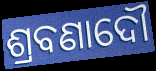
ଶ୍ରବଣାଦୌ